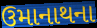
ઉમાનાથના